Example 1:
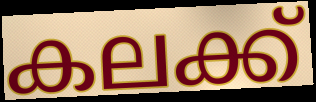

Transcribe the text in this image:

കലക്ക്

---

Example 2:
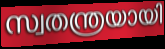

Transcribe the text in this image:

സ്വതന്ത്രയായി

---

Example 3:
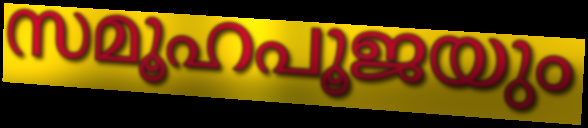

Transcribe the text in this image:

സമൂഹപൂജയും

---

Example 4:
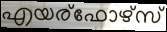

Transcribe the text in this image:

എയര്ഫോഴ്സ്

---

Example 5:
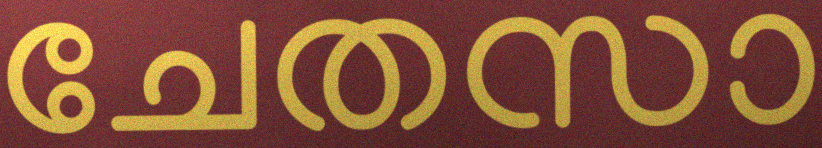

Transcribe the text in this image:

ചേതസാ